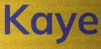
Kaye